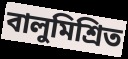
বালুমিশ্রিত